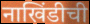
नाखिंडीची